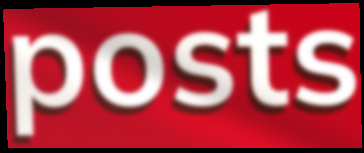
posts